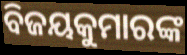
ବିଜୟକୁମାରଙ୍କ